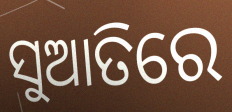
ସୁଆତିରେ